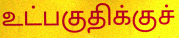
உட்பகுதிக்குச்